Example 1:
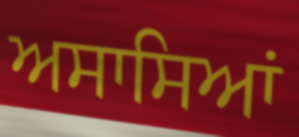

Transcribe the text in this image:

ਅਸਾਸਿਆਂ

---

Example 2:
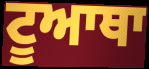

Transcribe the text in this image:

ਟੂਆਥਾ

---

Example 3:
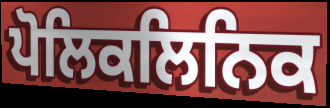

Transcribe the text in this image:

ਪੋਲਿਕਲਿਨਿਕ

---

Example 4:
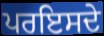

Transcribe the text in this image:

ਪਰਇਸਦੇ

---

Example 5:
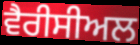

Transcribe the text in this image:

ਵੈਰੀਸੀਅਲ